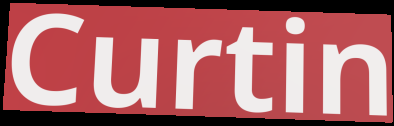
Curtin